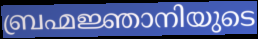
ബ്രഹ്മജ്ഞാനിയുടെ